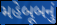
મહેબૂબનું